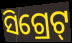
ସିଗ୍ରେଟ୍